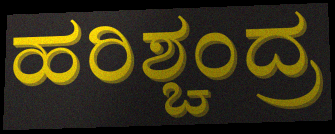
ಹರಿಶ್ಚಂದ್ರ